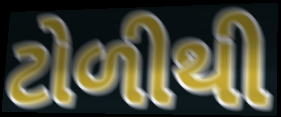
ટોળીથી